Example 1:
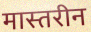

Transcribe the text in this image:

मास्तरीन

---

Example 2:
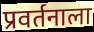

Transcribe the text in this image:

प्रवर्तनाला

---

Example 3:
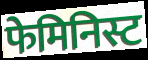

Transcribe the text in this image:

फेमिनिस्ट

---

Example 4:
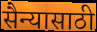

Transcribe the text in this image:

सैन्यासाठी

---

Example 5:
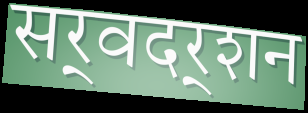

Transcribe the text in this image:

सर्वदर्शन